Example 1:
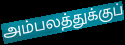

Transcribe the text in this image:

அம்பலத்துக்குப்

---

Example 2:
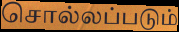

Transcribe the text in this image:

சொல்லப்படும்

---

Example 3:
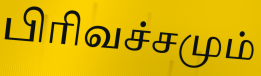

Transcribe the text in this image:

பிரிவச்சமும்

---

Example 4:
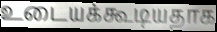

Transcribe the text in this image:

உடையக்கூடியதாக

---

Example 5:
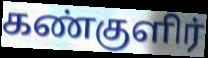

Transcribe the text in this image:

கண்குளிர்